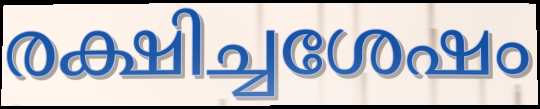
രക്ഷിച്ചശേഷം